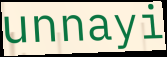
unnayi